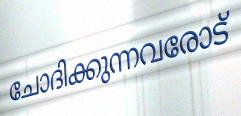
ചോദിക്കുന്നവരോട്